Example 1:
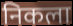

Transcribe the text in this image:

निकला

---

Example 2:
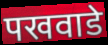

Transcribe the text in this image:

पखवाडे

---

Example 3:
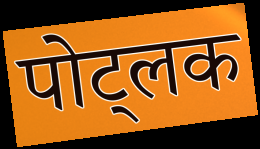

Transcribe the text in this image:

पोट्लक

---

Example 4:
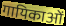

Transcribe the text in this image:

गायिकाओं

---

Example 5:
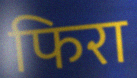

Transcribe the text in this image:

फिरा